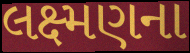
લક્ષ્મણના